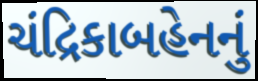
ચંદ્રિકાબહેનનું